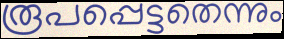
രൂപപ്പെട്ടതെന്നും